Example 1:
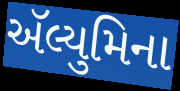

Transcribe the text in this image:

ઍલ્યુમિના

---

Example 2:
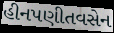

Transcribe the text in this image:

હીનપણીતવસેન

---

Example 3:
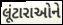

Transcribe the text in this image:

લૂંટારાઓને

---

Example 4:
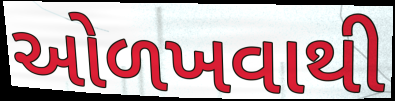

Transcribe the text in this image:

ઓળખવાથી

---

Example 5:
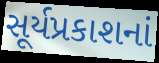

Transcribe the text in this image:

સૂર્યપ્રકાશનાં